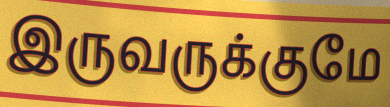
இருவருக்குமே